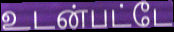
உடன்பட்டே